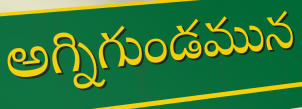
అగ్నిగుండమున